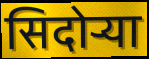
सिदोर्‍या